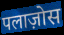
पलाज़ोस